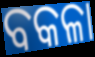
ବକଳା